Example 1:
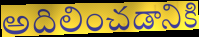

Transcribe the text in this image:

అదిలించడానికి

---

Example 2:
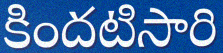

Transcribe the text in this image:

కిందటిసారి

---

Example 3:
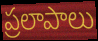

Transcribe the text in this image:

ప్రలాపాలు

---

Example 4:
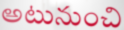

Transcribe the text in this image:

అటునుంచి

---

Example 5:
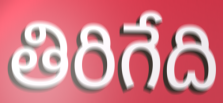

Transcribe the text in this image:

తిరిగేది